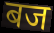
बज